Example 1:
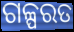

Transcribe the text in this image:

ଗଳ୍ପରତ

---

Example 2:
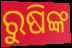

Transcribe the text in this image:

ରୁଷିଙ୍କ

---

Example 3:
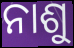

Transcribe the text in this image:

ନାଶୁ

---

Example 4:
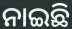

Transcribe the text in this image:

ନାଇଛି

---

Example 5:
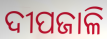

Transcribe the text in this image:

ଦୀପଜାଳି